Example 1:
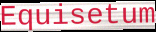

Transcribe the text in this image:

Equisetum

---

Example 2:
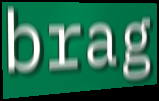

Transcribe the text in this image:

brag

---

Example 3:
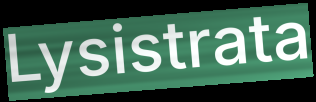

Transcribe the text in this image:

Lysistrata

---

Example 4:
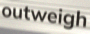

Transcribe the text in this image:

outweigh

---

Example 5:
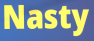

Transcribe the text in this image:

Nasty